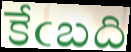
కేఁబది